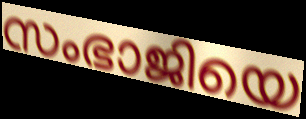
സംഭാജിയെ